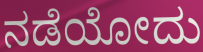
ನಡೆಯೋದು